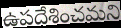
ఉపదేశించమని